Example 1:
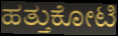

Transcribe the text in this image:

ಹತ್ತುಕೋಟಿ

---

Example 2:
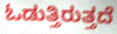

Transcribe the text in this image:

ಓಡುತ್ತಿರುತ್ತದೆ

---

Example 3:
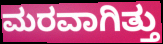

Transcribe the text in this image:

ಮರವಾಗಿತ್ತು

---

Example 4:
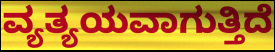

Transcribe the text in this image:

ವ್ಯತ್ಯಯವಾಗುತ್ತಿದೆ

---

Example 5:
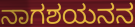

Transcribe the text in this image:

ನಾಗಶಯನನ